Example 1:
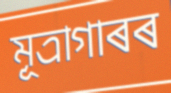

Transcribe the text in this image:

মূত্ৰাগাৰৰ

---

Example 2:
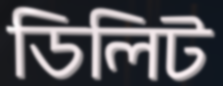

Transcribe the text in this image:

ডিলিট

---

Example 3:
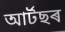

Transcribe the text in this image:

আৰ্টছৰ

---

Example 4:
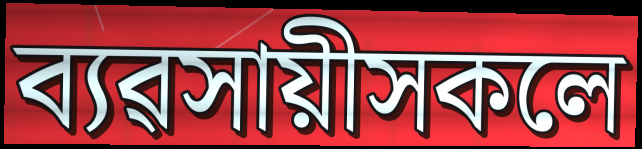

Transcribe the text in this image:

ব্যৱসায়ীসকলে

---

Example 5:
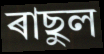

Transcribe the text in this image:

ৰাছুল